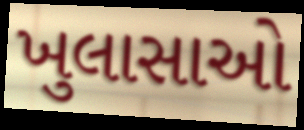
ખુલાસાઓ